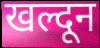
खल्दून